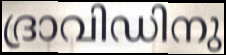
ദ്രാവിഡിനു